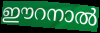
ഈറനാൽ